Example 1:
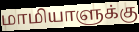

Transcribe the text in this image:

மாமியாளுக்கு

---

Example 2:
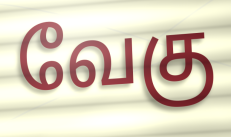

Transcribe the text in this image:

வேகு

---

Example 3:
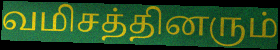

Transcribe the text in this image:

வமிசத்தினரும்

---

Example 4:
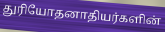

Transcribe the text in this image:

துரியோதனாதியர்களின்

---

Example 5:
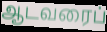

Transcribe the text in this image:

ஆடவரைப்